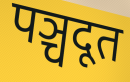
पञ्चदूत